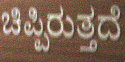
ಚಿಪ್ಪಿರುತ್ತದೆ